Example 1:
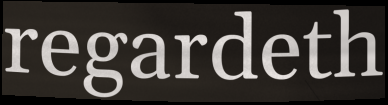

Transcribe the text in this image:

regardeth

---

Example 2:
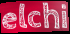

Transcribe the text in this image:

elchi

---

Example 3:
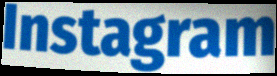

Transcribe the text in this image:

Instagram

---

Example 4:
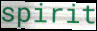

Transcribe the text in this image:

spirit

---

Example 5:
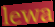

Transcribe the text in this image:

lewa